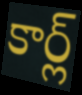
కార్ల్